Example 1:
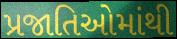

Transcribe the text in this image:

પ્રજાતિઓમાંથી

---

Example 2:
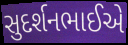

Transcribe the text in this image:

સુદર્શનભાઈએ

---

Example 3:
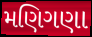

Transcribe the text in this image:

મણિગણા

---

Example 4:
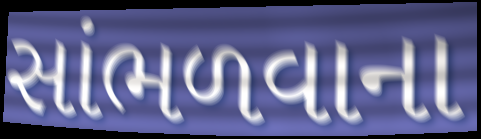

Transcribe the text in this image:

સાંભળવાના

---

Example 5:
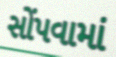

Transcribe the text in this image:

સોંપવામાં